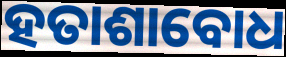
ହତାଶାବୋଧ